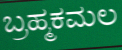
ಬ್ರಹ್ಮಕಮಲ